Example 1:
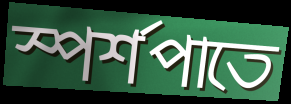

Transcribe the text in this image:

স্পর্শপাতে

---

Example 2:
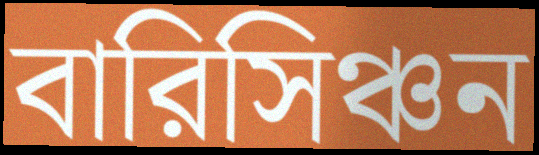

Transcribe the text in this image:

বারিসিঞ্চন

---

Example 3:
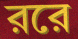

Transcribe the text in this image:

ররে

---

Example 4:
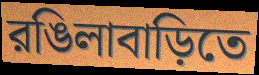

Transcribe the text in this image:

রঙিলাবাড়িতে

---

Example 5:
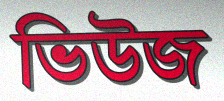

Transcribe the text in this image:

ভিউজ